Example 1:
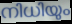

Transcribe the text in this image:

നിധിയും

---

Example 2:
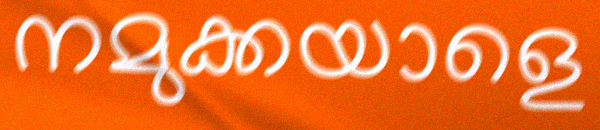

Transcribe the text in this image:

നമുക്കയാളെ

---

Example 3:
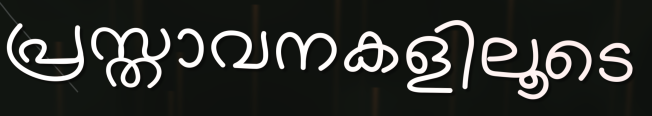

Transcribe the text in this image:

പ്രസ്താവനകളിലൂടെ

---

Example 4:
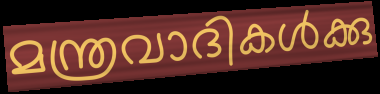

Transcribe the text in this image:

മന്ത്രവാദികൾക്കു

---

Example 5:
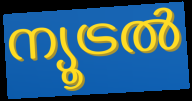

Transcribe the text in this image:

ന്യൂട്രൽ